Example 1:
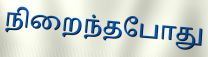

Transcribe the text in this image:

நிறைந்தபோது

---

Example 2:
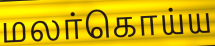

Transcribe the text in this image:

மலர்கொய்ய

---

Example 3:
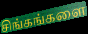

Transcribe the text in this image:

சிங்கங்களை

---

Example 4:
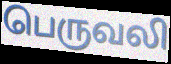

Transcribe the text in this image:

பெருவலி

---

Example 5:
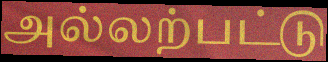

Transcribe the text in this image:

அல்லற்பட்டு